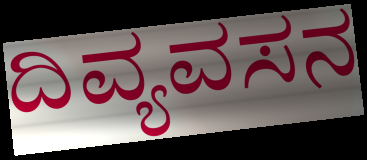
ದಿವ್ಯವಸನ